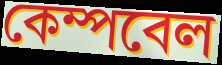
কেম্পবেল